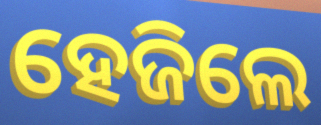
ହେଜିଲେ